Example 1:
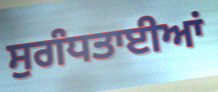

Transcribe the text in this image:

ਸੁਗੰਧਤਾਈਆਂ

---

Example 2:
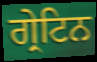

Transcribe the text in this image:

ਗ੍ਰੇਟਿਨ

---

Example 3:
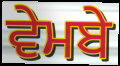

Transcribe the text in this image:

ਵੇਮਬੇ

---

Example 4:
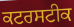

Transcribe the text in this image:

ਕਟਰਸਟੀਕ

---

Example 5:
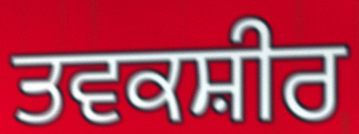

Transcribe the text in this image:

ਤਵਕਸ਼ੀਰ